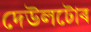
দেউলটোৰ